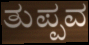
ತುಪ್ಪವ